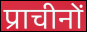
प्राचीनों